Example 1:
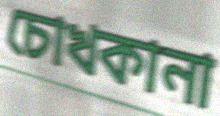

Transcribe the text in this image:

চোখকানা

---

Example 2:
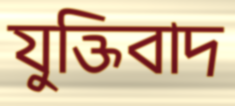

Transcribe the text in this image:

যুক্তিবাদ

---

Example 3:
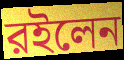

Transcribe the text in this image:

রইলেন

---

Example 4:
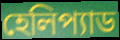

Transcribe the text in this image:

হেলিপ্যাড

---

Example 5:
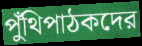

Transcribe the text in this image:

পুঁথিপাঠকদের